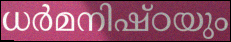
ധർമനിഷ്ഠയും